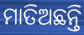
ମାତିଅଛନ୍ତି